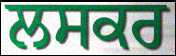
ਲਸਕਰ